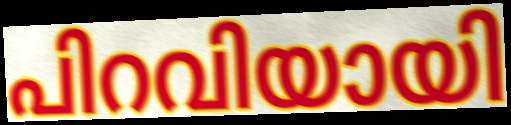
പിറവിയായി